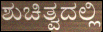
ಶುಚಿತ್ವದಲ್ಲಿ